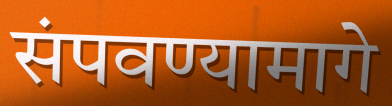
संपवण्यामागे